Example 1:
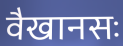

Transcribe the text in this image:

वैखानसः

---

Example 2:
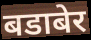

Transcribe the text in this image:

बडाबेर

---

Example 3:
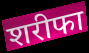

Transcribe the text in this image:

शरीफा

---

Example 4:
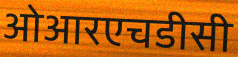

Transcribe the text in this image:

ओआरएचडीसी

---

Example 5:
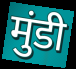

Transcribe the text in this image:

मुंडी